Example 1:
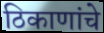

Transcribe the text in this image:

ठिकाणांचे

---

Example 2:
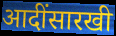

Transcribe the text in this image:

आदींसारखी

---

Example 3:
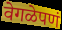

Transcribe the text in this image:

वेगळेपणं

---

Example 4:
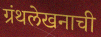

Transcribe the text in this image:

ग्रंथलेखनाची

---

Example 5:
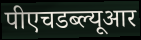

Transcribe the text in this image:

पीएचडब्ल्यूआर